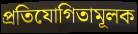
প্রতিযোগিতামূলক